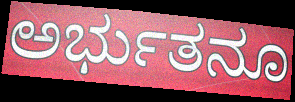
ಅರ್ಭುತನೂ